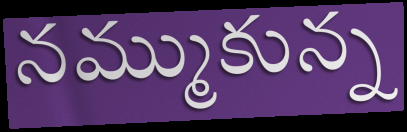
నమ్ముకున్న